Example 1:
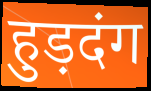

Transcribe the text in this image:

हुड़दंग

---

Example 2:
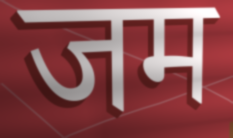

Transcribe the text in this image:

जम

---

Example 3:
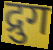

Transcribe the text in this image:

द्रुग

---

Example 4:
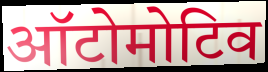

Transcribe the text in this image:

ऑटोमोटिव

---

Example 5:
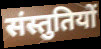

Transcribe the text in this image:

संस्तुतियों